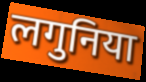
लगुनिया